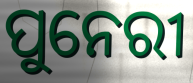
ପୁନେରୀ